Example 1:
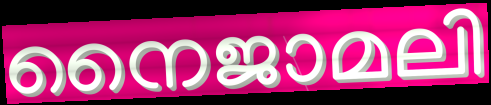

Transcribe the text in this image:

നൈജാമലി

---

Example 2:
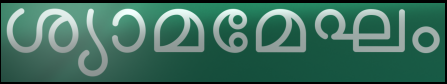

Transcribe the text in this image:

ശ്യാമമേഘം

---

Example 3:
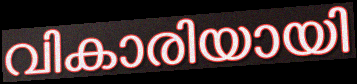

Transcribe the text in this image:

വികാരിയായി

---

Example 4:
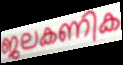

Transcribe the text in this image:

ജലകണിക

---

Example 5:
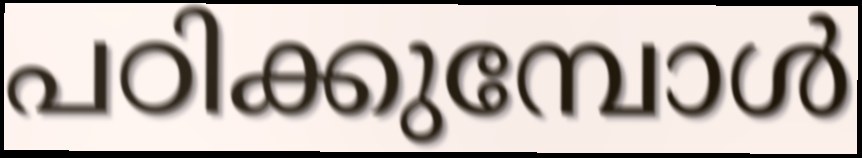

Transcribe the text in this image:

പഠിക്കുമ്പോൾ